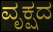
ವೃಕ್ಷದ